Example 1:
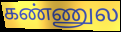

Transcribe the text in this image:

கண்ணுல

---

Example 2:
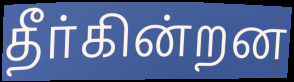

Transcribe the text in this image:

தீர்கின்றன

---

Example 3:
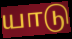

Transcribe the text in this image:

யாடு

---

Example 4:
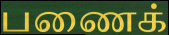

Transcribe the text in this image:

பணைக்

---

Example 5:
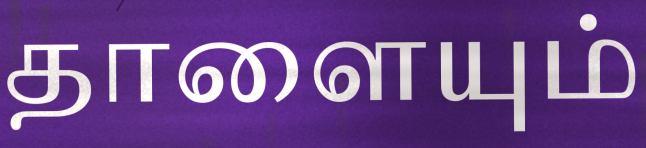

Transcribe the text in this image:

தாளையும்